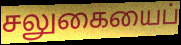
சலுகையைப்